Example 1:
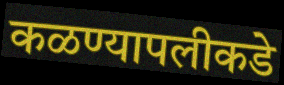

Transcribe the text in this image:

कळण्यापलीकडे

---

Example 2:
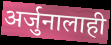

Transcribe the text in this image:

अर्जुनालाही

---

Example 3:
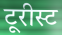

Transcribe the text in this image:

टूरीस्ट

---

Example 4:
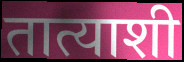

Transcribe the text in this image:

तात्याशी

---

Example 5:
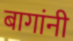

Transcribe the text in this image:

बागांनी